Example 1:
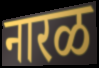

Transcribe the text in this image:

नारळ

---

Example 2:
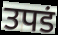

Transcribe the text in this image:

उपडं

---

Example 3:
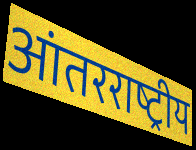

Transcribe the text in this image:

आंतरराष्ट्रीय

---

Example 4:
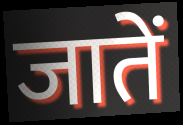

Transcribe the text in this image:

जातें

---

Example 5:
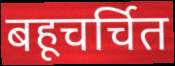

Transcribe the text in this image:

बहूचर्चित